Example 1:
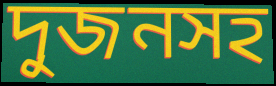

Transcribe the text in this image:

দুজনসহ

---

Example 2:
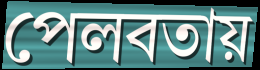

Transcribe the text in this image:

পেলবতায়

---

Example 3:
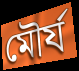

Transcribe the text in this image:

মৌর্য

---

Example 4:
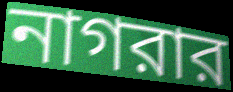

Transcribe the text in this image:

নাগরার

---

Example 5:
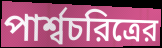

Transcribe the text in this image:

পার্শ্বচরিত্রের